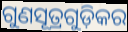
ଗୁଣସୂତ୍ରଗୁଡ଼ିକର